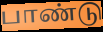
பாண்டு